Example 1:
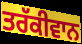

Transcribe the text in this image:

ਤਰੱਕੀਵਾਨ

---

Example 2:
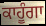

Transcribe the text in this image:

ਕਾਹੂੰਗਾ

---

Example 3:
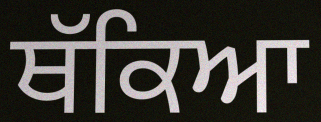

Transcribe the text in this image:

ਥੱਕਿਆ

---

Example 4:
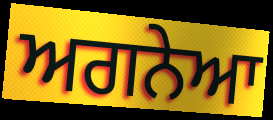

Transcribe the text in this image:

ਅਗਨੇਆ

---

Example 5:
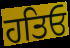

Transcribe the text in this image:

ਹਤਿਓ